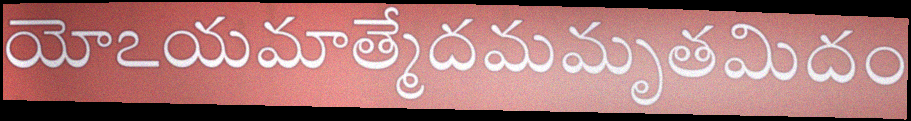
యోఽయమాత్మేదమమృతమిదం